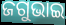
ଜଗୁଭାଇ